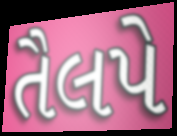
તૈલપે